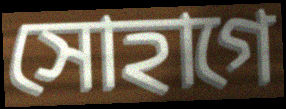
সোহাগে